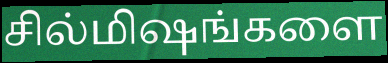
சில்மிஷங்களை